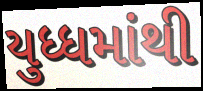
યુધ્ધમાંથી